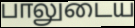
பாலுடைய